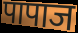
पापाज